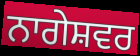
ਨਾਗੇਸ਼ਵਰ